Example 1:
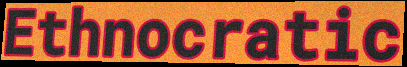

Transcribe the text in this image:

Ethnocratic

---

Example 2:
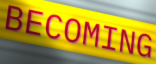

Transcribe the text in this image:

BECOMING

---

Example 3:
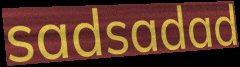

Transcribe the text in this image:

sadsadad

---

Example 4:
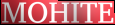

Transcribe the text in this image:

MOHITE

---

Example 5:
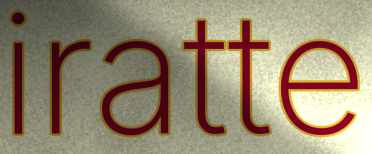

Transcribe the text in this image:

iratte